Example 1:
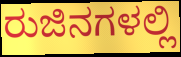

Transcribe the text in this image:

ರುಜಿನಗಳಲ್ಲಿ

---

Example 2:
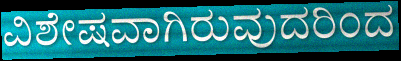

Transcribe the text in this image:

ವಿಶೇಷವಾಗಿರುವುದರಿಂದ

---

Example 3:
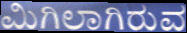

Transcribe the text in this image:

ಮಿಗಿಲಾಗಿರುವ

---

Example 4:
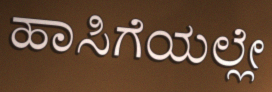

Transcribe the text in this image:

ಹಾಸಿಗೆಯಲ್ಲೇ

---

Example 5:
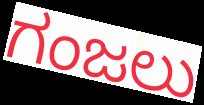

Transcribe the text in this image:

ಗಂಜಲು